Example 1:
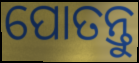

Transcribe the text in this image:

ପୋତନ୍ତୁ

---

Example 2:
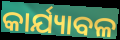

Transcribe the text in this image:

କାର୍ଯ୍ୟାବଳ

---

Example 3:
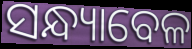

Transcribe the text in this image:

ସନ୍ଧ୍ୟାବେଳ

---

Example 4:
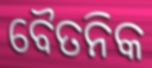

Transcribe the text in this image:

ବୈତନିକ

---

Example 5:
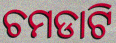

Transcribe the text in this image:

ଚମଡାଟି